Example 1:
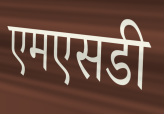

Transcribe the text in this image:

एमएसडी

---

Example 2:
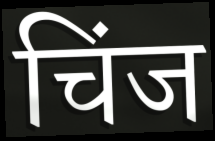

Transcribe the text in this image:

चिंज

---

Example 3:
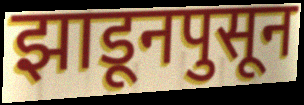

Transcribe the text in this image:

झाडूनपुसून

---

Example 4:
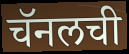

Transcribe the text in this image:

चॅनलची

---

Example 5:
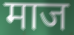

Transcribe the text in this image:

माज